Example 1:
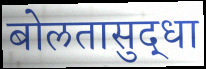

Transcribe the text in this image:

बोलतासुद्धा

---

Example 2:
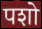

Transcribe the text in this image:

पशो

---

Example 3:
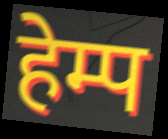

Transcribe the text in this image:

हेम्प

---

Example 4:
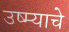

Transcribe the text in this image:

उष्म्याचे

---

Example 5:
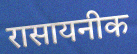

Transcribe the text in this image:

रासायनीक